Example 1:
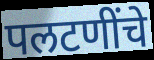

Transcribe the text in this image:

पलटणींचे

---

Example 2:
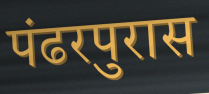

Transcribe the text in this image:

पंढरपुरास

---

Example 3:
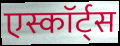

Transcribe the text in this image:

एस्कॉर्ट्स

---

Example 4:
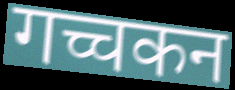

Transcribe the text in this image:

गच्चकन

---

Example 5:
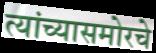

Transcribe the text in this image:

त्यांच्यासमोरचे